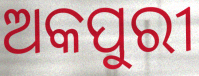
ଅକପୁରୀ